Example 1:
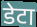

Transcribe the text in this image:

डेटा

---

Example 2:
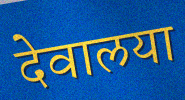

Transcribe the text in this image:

देवालया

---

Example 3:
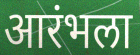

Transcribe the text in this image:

आरंभला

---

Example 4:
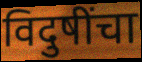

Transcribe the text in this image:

विदुषींचा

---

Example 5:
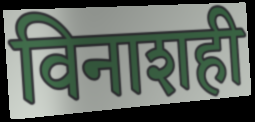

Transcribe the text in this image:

विनाशही